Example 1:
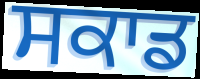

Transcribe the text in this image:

ਸਕਾਡ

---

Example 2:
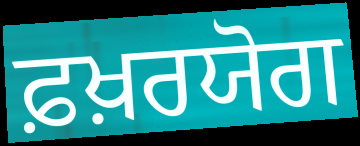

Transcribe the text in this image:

ਫ਼ਖ਼ਰਯੋਗ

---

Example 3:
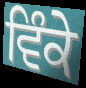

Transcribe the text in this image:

ਵਿੰਕੇ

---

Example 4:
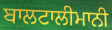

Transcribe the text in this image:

ਬਾਲਟਾਲੀਮਾਨੀ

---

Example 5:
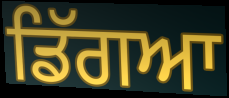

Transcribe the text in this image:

ਡਿੱਗਆ